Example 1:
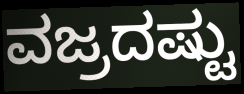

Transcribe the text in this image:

ವಜ್ರದಷ್ಟು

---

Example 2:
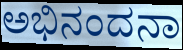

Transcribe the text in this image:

ಅಭಿನಂದನಾ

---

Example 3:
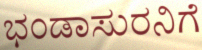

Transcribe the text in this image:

ಭಂಡಾಸುರನಿಗೆ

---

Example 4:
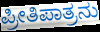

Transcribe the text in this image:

ಪ್ರೀತಿಪಾತ್ರನು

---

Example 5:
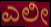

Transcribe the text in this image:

ಎಲೀ